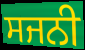
ਸਜਨੀ